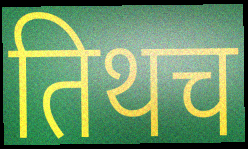
तिथच